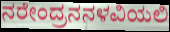
ನರೇಂದ್ರನನಳವಿಯಲಿ